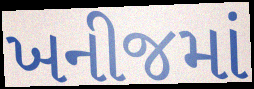
ખનીજમાં